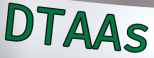
DTAAs